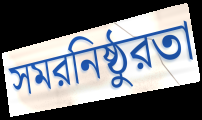
সমরনিষ্ঠুরতা